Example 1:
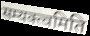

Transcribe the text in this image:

सम्यक्त्वमिति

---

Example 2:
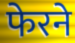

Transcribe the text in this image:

फेरने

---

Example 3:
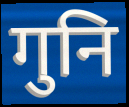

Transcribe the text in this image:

गुनि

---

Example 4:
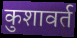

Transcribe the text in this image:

कुशावर्त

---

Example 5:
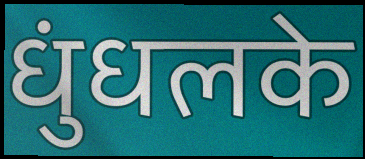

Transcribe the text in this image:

धुंधलके